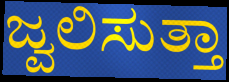
ಜ್ವಲಿಸುತ್ತಾ